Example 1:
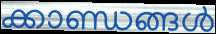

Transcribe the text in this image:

ക്കാണ്ഡങ്ങൾ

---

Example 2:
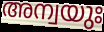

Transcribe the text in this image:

അന്വയുഃ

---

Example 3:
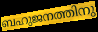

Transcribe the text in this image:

ബഹുജനത്തിനു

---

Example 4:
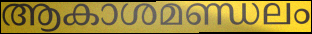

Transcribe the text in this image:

ആകാശമണ്ഡലം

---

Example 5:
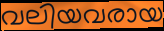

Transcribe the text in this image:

വലിയവരായ